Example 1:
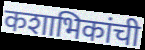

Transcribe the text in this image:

कशाभिकांची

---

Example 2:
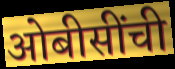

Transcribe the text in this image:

ओबीसींची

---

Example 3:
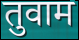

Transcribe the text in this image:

तुवाम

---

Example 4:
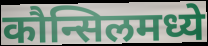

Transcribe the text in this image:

कौन्सिलमध्ये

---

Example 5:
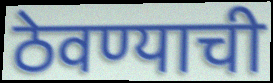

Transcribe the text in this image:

ठेवण्याची